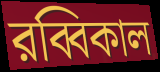
রব্বিকাল